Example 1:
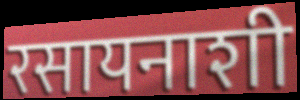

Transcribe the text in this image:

रसायनाशी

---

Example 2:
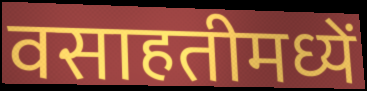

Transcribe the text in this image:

वसाहतीमध्यें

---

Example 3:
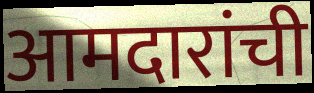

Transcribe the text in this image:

आमदारांची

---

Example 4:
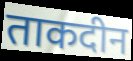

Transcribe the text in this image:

ताकदीन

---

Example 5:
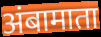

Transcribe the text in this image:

अंबामाता